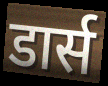
डार्स